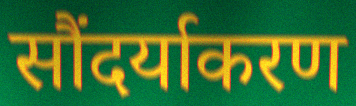
सौंदर्याकरण